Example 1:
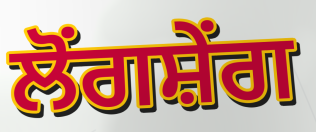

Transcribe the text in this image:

ਲੋਂਗਸ਼ੇਂਗ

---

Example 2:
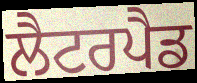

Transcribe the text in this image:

ਲੈਟਰਪੈਡ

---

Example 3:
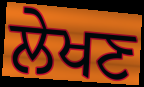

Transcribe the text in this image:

ਲੇਖਣ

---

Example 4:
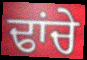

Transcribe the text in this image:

ਢਾਂਚੇ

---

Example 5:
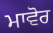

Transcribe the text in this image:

ਮਾਵੋਰ